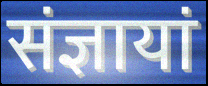
संज्ञायां